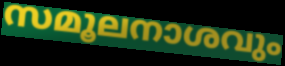
സമൂലനാശവും